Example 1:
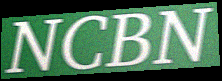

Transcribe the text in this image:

NCBN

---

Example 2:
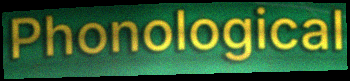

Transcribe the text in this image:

Phonological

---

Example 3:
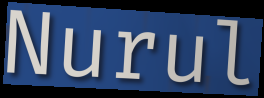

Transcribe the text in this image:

Nurul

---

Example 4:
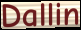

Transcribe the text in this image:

Dallin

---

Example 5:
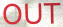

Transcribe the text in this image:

OUT